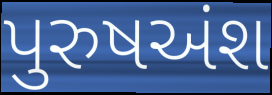
પુરુષઅંશ